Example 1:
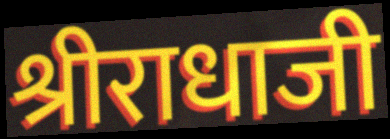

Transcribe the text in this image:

श्रीराधाजी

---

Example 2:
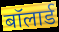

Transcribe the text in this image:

बॉलार्ड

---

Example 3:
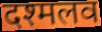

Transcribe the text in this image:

दश्मलव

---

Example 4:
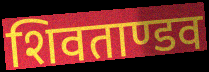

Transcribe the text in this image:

शिवताण्डव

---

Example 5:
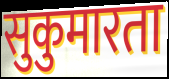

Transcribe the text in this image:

सुकुमारता